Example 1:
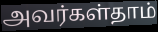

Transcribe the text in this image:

அவர்கள்தாம்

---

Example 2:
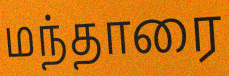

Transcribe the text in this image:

மந்தாரை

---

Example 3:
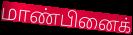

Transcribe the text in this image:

மாண்பினைக்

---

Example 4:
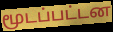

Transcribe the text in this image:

மூடப்பட்டன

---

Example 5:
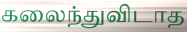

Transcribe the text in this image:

கலைந்துவிடாத